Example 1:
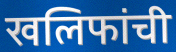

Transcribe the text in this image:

खलिफांची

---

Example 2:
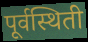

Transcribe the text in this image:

पूर्वस्थिती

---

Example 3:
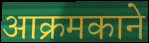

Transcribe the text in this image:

आक्रमकाने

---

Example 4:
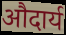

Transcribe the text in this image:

औदार्य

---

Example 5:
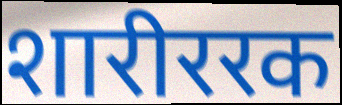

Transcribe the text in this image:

शारीररक